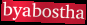
byabostha